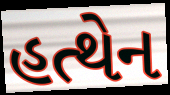
હત્થેન